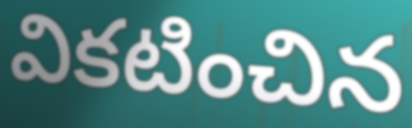
వికటించిన